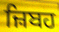
ਜ਼ਿਬਹ